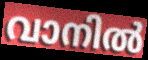
വാനിൽ